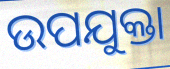
ଉପଯୁକ୍ତା